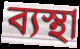
ব্যস্থা